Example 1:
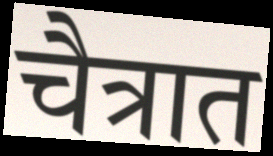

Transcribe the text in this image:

चैत्रात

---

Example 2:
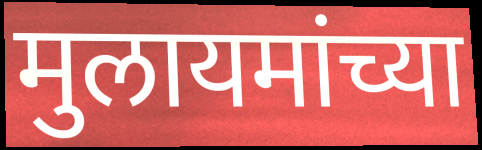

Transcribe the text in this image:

मुलायमांच्या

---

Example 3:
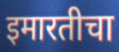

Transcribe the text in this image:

इमारतीचा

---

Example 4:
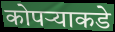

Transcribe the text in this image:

कोपऱ्याकडे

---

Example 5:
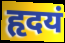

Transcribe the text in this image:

हृदयं